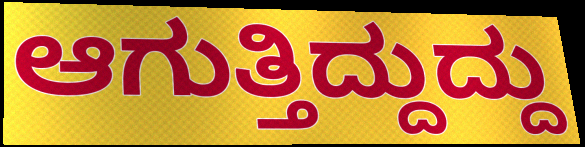
ಆಗುತ್ತಿದ್ದುದ್ದು